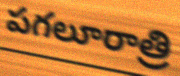
పగలూరాత్రి